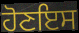
ਹੋਣਇਸ